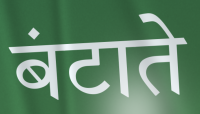
बंटाते